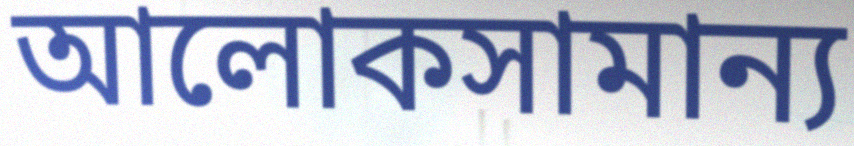
আলোকসামান্য